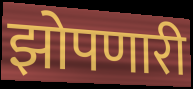
झोपणारी